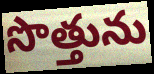
సొత్తును